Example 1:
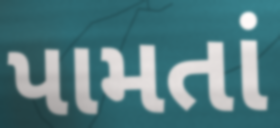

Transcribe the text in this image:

પામતાં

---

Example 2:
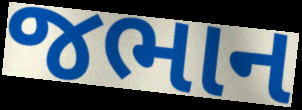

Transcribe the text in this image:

જભાન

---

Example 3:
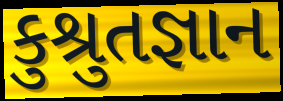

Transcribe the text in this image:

કુશ્રુતજ્ઞાન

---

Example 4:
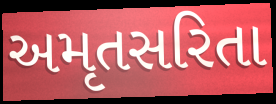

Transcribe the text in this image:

અમૃતસરિતા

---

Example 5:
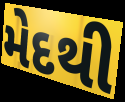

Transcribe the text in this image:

મેદથી